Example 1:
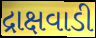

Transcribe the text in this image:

દ્રાક્ષવાડી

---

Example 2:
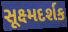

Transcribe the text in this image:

સૂક્ષ્મદર્શક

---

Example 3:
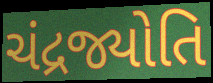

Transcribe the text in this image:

ચંદ્રજ્યોતિ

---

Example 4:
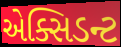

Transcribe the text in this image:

એક્સિડન્ટ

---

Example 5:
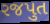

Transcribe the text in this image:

રજપુત